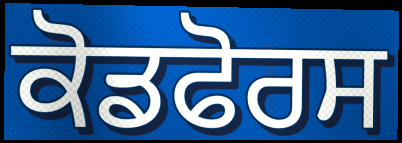
ਕੋਡਫੋਰਸ